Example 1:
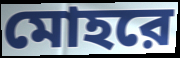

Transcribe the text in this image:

মোহরে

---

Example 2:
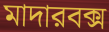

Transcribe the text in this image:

মাদারবক্স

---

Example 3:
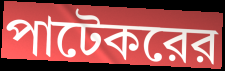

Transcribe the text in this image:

পাটেকরের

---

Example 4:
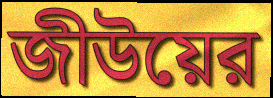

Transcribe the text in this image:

জীউয়ের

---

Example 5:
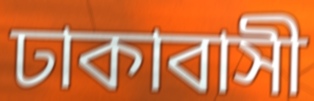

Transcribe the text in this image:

ঢাকাবাসী